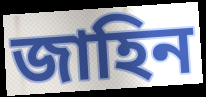
জাহিন